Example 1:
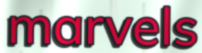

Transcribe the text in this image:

marvels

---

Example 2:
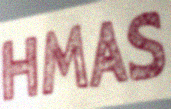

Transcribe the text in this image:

HMAS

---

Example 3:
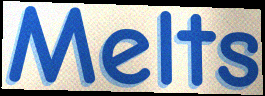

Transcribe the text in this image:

Melts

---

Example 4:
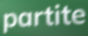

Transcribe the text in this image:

partite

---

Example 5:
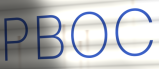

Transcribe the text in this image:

PBOC